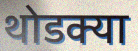
थोडक्या